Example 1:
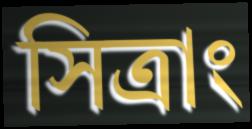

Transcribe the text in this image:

সিত্রাং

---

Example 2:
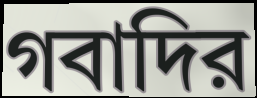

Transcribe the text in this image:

গবাদির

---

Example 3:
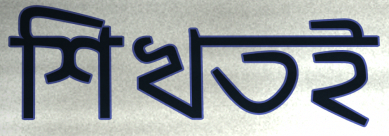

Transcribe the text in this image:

শিখতই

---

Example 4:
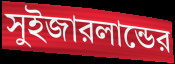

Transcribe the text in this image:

সুইজারলান্ডের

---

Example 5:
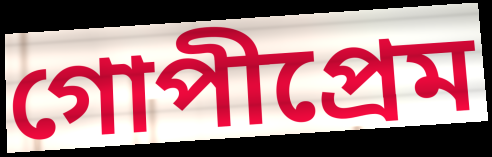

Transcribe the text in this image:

গোপীপ্রেম